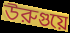
উরুগুয়ে